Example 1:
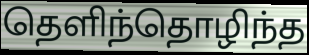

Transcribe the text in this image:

தெளிந்தொழிந்த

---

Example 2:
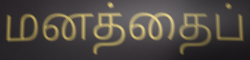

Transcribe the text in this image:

மனத்தைப்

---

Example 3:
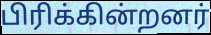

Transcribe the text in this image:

பிரிக்கின்றனர்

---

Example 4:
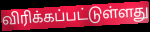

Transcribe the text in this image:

விரிக்கப்பட்டுள்ளது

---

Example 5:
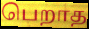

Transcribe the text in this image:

பெறாத